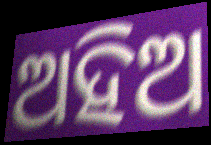
ଅହିଅ